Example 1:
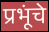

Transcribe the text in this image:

प्रभूंचे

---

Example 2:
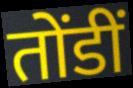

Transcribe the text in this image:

तोंडीं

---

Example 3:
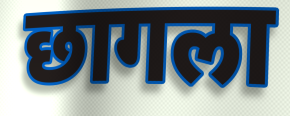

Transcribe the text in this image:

छागला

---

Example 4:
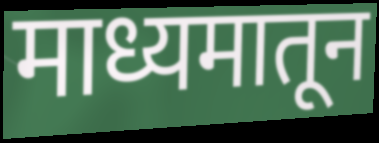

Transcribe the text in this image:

माध्यमातून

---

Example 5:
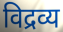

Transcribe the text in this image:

विद्रव्य